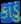
કાંડું